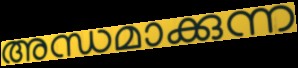
അന്ധമാക്കുന്ന